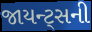
જાયન્ટ્સની